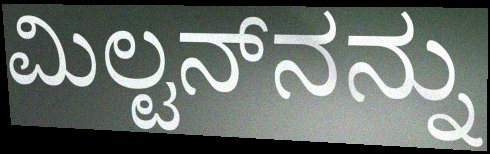
ಮಿಲ್ಟನ್‌ನನ್ನು